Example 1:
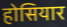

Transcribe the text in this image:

होसियार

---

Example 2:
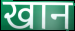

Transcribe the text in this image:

खान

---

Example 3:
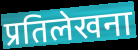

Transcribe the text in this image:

प्रतिलेखना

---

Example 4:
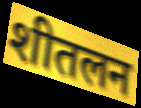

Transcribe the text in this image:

शीतलन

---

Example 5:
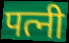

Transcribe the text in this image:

पत्‍नी